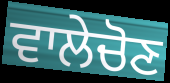
ਵਾਲੇਚੋਣ